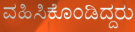
ವಹಿಸಿಕೊಂಡಿದ್ದರು